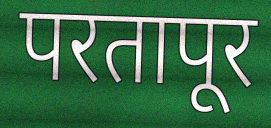
परतापूर